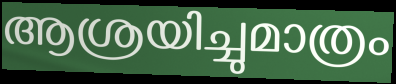
ആശ്രയിച്ചുമാത്രം